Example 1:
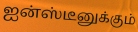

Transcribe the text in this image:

ஐன்ஸ்டீனுக்கும்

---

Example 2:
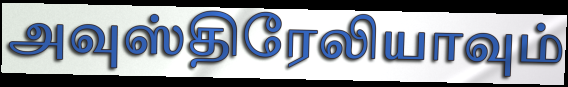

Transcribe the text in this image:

அவுஸ்திரேலியாவும்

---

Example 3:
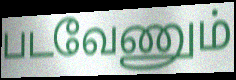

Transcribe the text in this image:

படவேணும்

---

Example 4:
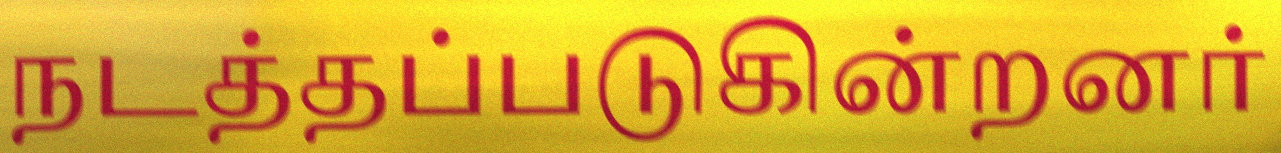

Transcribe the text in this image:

நடத்தப்படுகின்றனர்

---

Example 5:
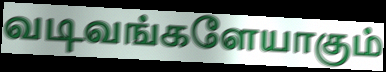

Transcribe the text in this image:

வடிவங்களேயாகும்